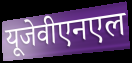
यूजेवीएनएल